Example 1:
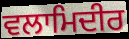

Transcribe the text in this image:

ਵਲਾਮਿਦੀਰ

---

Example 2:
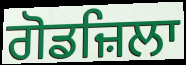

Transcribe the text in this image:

ਗੋਡਜ਼ਿਲਾ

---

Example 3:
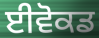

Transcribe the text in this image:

ਈਵੋਕਡ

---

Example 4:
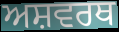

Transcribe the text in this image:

ਅਸ਼ਵਰਥ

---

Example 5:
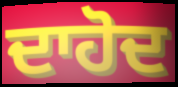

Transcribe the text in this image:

ਦਾਹੋਦ